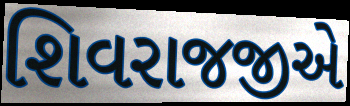
શિવરાજજીએ